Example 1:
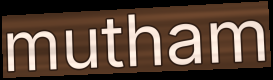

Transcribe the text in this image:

mutham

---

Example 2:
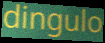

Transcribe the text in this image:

dingulo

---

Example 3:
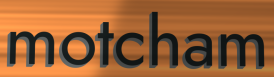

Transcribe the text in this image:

motcham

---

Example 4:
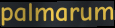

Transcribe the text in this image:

palmarum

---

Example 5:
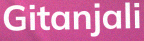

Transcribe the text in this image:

Gitanjali